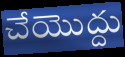
చేయొద్దు